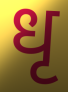
धृ